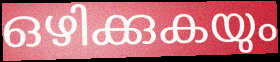
ഒഴിക്കുകയും